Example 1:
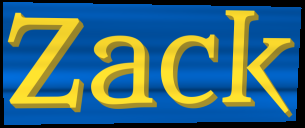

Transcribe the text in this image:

Zack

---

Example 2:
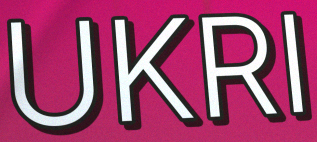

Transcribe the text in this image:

UKRI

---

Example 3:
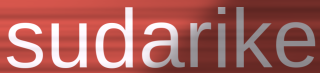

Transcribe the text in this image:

sudarike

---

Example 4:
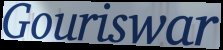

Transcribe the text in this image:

Gouriswar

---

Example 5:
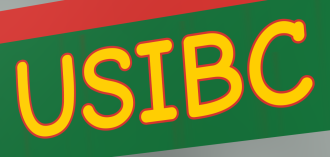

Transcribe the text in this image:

USIBC